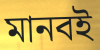
মানবই